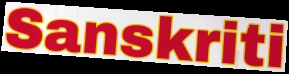
Sanskriti